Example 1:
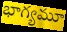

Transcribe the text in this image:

భాగ్యమూ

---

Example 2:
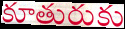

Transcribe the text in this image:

కూతురుకు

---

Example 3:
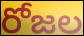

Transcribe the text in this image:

రోజల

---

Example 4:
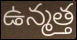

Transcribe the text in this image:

ఉన్మత్త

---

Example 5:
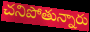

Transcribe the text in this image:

చనిపోతున్నారు